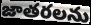
జాతరలను